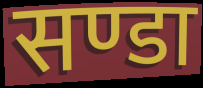
सण्डा